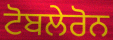
ਟੋਬਲੇਰੋਨ